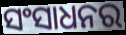
ସଂସାଧନର